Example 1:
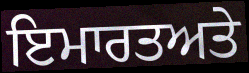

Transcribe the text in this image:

ਇਮਾਰਤਅਤੇ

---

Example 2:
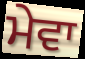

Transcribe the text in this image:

ਮੇਵਾ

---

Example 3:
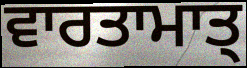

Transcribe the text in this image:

ਵਾਰਤਾਮਾਤ੍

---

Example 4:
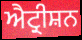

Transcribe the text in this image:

ਐਟ੍ਰੀਸ਼ਨ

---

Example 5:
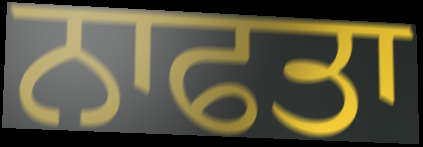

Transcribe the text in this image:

ਨਾਫਤਾ